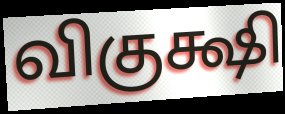
விகுக்ஷி